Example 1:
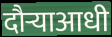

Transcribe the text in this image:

दौऱ्याआधी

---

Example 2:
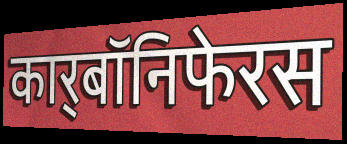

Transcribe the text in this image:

कार्‌बॉनिफेरस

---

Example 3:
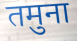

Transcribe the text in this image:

तमुना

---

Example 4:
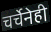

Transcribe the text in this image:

चर्चेनेही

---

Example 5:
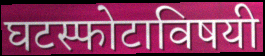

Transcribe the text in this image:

घटस्फोटाविषयी